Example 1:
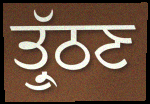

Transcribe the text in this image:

ਤ੍ਰੁੱਠਣ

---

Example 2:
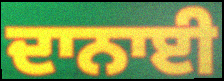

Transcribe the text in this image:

ਦਾਨਾਈ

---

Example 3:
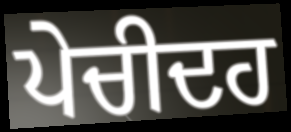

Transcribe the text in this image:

ਪੇਚੀਦਹ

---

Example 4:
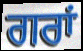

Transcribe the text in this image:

ਗਰਾਂ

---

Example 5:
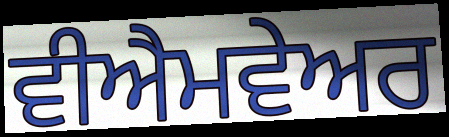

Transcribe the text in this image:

ਵੀਐਮਵੇਅਰ